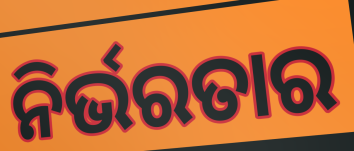
ନିର୍ଭରତାର